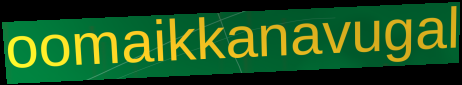
oomaikkanavugal